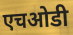
एचओडी